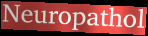
Neuropathol